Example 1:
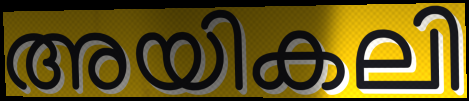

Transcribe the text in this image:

അയികലി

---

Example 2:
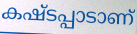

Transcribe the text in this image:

കഷ്ടപ്പാടാണ്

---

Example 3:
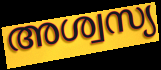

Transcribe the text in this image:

അശ്വസ്യ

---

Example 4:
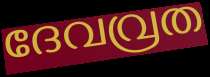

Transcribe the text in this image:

ദേവവ്രത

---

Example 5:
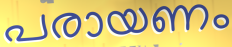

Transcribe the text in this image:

പരായണം